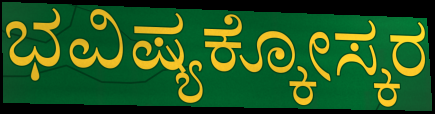
ಭವಿಷ್ಯಕ್ಕೋಸ್ಕರ